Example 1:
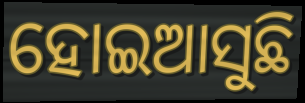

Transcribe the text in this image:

ହୋଇଆସୁଛି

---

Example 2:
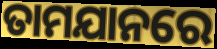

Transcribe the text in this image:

ତାମଯାନରେ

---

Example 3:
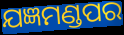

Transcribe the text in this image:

ଯଜ୍ଞମଣ୍ଡପର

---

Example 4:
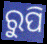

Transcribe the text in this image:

ରୁପି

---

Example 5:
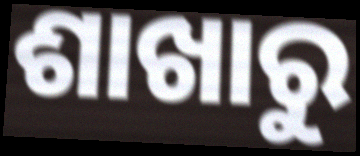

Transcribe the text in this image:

ଶାଖାରୁ